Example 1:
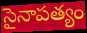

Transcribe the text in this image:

సైనాపత్యం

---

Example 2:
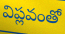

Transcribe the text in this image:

విప్లవంతో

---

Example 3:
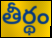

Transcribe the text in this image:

తీర్థం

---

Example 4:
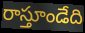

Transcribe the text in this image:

రాస్తూండేది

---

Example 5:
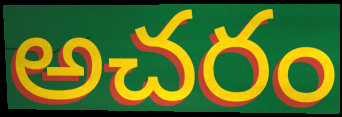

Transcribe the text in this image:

అచరం